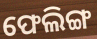
ଫେଲିଙ୍ଗ